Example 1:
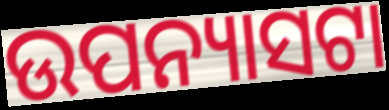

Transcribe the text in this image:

ଉପନ୍ୟାସଟା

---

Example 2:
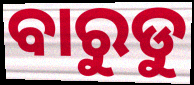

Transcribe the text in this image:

ବାରୁଡୁ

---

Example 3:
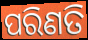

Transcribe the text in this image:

ପରିଣତି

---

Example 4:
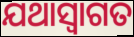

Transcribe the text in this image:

ଯଥାସ୍ଵାଗତ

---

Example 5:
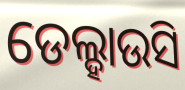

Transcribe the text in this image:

ଡେଲ୍ହାଉସି